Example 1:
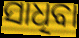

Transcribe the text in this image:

ସାଧିବା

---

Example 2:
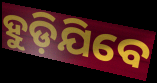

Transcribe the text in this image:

ହୁଡ଼ିଯିବେ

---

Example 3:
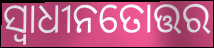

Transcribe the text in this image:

ସ୍ୱାଧୀନତୋତ୍ତର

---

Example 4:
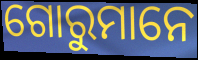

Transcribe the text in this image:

ଗୋରୁମାନେ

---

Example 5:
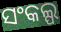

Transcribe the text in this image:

ସଂକଲ୍ପ